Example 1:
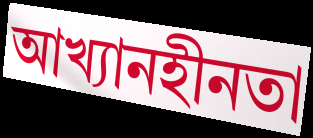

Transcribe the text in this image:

আখ্যানহীনতা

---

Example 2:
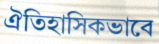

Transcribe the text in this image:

ঐতিহাসিকভাবে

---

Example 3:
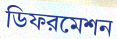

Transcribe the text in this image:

ডিফরমেশন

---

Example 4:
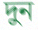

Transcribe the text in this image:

দুন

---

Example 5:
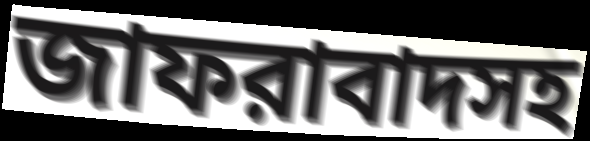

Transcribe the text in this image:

জাফরাবাদসহ